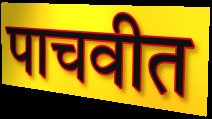
पाचवीत